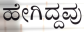
ಹೇಗಿದ್ದವು